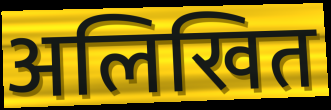
अलिखित